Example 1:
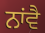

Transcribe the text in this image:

ਨਾਂਵੈ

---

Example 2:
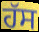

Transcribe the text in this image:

ਹੱਸ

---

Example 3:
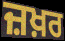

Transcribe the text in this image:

ਜ਼ਖ਼ਰ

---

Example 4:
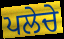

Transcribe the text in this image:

ਪਲੇਚੇ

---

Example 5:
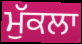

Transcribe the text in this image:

ਮੁੱਕਲਾ